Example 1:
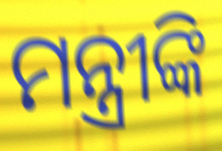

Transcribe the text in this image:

ମନ୍ତ୍ରୀଙ୍କି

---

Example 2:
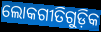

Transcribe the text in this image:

ଲୋକଗୀତିଗୁଡ଼ିକ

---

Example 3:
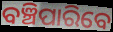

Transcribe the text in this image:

ବଞ୍ଚିପାରିବେ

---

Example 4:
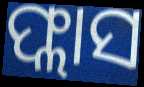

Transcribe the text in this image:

ଫ୍ଲାସ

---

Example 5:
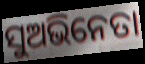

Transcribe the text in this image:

ସୁଅଭିନେତା